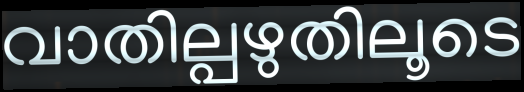
വാതില്പഴുതിലൂടെ